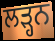
ਲੜ੍ਹਨ